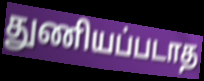
துணியப்படாத